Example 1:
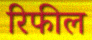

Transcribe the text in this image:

रिफील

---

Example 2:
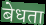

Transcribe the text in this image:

बेधता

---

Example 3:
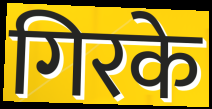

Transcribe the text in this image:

गिरके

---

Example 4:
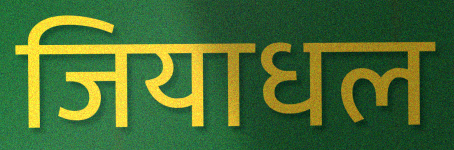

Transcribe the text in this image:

जियाधल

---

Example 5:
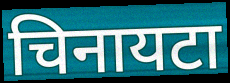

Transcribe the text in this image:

चिनायटा